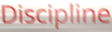
Discipline